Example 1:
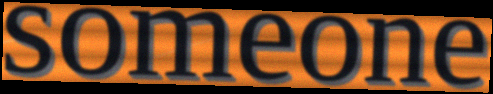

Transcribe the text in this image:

someone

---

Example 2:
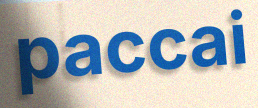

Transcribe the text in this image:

paccai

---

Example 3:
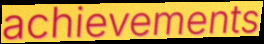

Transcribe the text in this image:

achievements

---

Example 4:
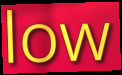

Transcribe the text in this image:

low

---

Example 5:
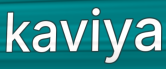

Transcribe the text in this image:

kaviya